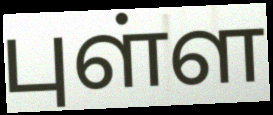
புள்ள